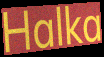
Halka